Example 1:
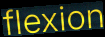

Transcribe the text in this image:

flexion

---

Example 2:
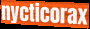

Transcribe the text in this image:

nycticorax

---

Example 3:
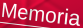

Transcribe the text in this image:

Memoria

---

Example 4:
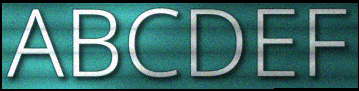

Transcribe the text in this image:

ABCDEF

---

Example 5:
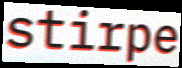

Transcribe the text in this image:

stirpe